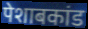
पेशाबकांड